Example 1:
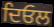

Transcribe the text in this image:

ਦਿਓਲ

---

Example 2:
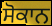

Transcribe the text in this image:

ਸੋਕਾਨ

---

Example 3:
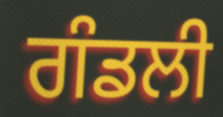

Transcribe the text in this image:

ਗੰਡਲੀ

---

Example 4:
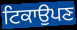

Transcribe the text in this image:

ਟਿਕਾਉਪਣ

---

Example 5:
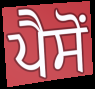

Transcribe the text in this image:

ਪੈਸੋਂ